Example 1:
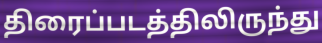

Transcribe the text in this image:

திரைப்படத்திலிருந்து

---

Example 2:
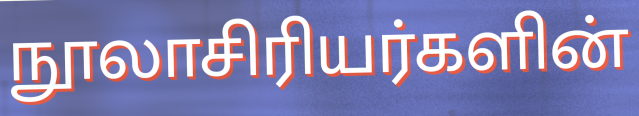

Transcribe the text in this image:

நூலாசிரியர்களின்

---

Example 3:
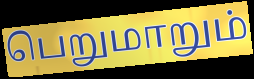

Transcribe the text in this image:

பெறுமாறும்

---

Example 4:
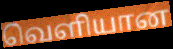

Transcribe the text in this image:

வெளியான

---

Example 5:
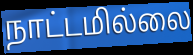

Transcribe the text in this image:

நாட்டமில்லை